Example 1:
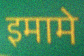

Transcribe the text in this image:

इमामे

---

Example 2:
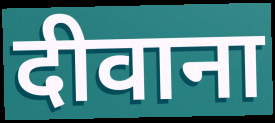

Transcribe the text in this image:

दीवाना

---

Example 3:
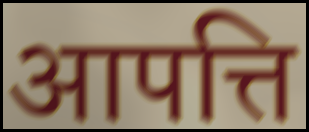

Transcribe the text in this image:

आपत्ति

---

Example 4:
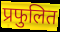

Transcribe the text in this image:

प्रफुलित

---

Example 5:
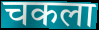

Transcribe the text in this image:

चकला